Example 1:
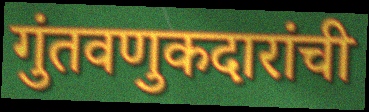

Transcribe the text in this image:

गुंतवणुकदारांची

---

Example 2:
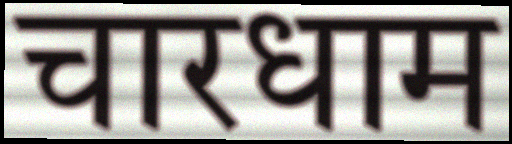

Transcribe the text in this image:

चारधाम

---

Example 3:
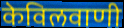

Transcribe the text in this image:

केविलवाणी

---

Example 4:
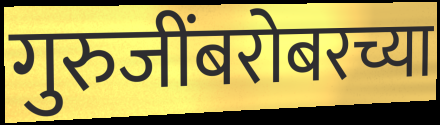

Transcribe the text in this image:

गुरुजींबरोबरच्या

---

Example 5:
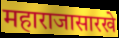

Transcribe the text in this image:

महाराजासारखे